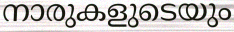
നാരുകളുടെയും